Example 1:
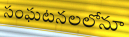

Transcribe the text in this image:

సంఘటనలలోనూ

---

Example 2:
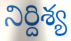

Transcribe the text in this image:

నిర్దిశ్య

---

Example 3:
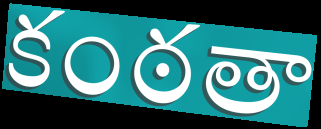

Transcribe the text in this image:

కంఠతా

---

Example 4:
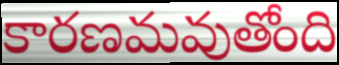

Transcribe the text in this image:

కారణమవుతోంది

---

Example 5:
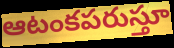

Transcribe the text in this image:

ఆటంకపరుస్తూ